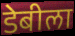
डेबीला